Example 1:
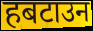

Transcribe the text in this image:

हबटाउन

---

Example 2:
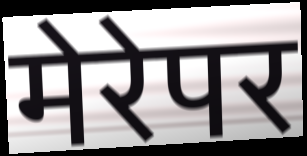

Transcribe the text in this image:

मेरेपर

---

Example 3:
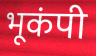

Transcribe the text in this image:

भूकंपी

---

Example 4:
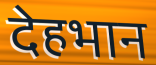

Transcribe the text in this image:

देहभान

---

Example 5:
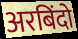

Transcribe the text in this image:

अरबिंदो